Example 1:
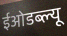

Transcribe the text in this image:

ईओडब्ल्यू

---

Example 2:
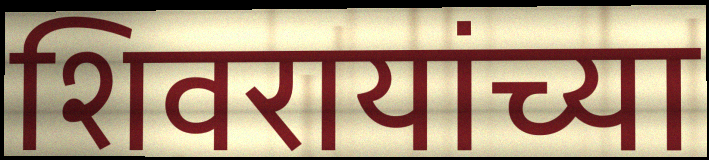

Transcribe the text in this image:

शिवरायांच्या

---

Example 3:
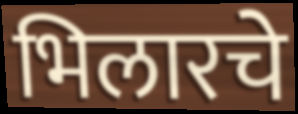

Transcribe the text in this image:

भिलारचे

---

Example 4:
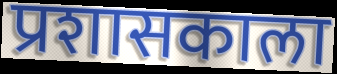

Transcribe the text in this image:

प्रशासकाला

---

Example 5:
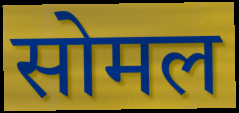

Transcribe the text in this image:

सोमल